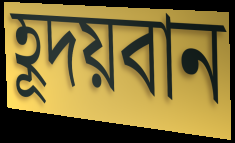
হূদয়বান